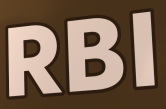
RBI